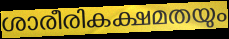
ശാരീരികക്ഷമതയും